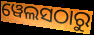
ୱେଲସଠାରୁ